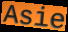
Asie